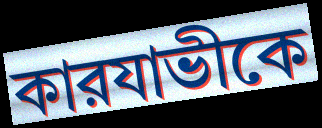
কারযাভীকে